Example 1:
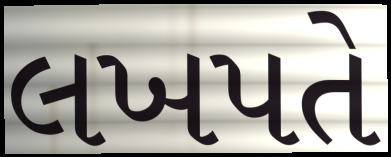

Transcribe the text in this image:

લખપતે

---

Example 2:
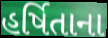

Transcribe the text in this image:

હર્ષિતાના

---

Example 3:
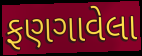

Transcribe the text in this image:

ફણગાવેલા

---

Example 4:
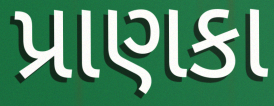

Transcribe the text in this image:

પ્રાણકા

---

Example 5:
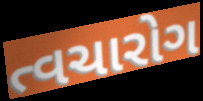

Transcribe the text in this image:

ત્વચારોગ